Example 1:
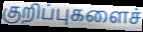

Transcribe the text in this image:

குறிப்புகளைச்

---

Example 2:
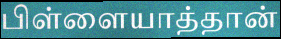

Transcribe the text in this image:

பிள்ளையாத்தான்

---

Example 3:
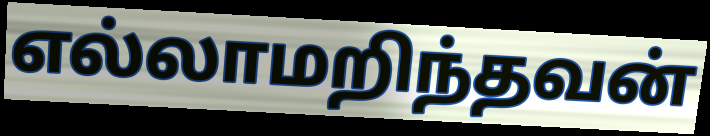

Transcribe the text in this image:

எல்லாமறிந்தவன்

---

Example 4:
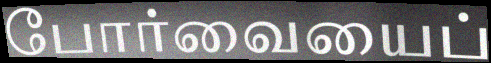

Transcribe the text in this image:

போர்வையைப்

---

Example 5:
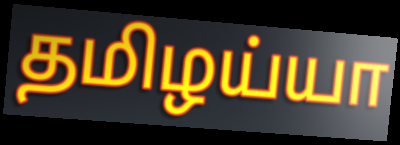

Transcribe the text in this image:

தமிழய்யா